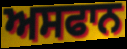
ਅਸਫਾਨ